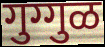
गुग्गुळ